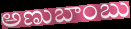
అణుబాంబు